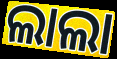
ଲାଲା